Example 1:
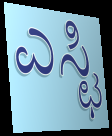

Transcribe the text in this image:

ಎಸ್ಟಿ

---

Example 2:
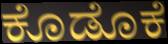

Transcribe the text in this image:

ಕೊಡೊಕೆ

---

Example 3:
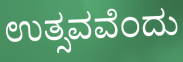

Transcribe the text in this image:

ಉತ್ಸವವೆಂದು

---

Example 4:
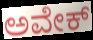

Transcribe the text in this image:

ಅವೇಕ್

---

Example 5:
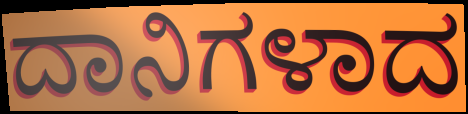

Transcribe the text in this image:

ದಾನಿಗಳಾದ